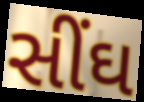
સીંઘ